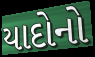
યાદોનો